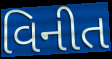
વિનીત